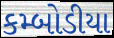
કમ્બોડીયા